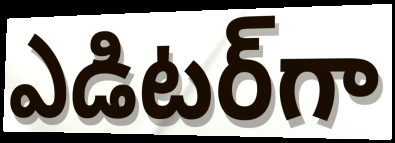
ఎడిటర్‌గా